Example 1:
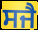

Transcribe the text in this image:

ਸਜੈ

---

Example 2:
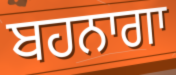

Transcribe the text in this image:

ਬਹਨਾਗਾ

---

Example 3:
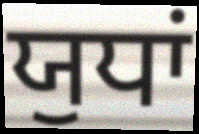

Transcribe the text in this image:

ਯੁਧਾਂ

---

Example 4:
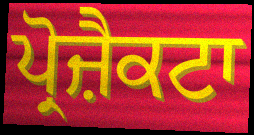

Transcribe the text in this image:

ਪ੍ਰੋਜ਼ੈਕਟਾ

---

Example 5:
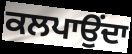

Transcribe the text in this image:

ਕਲਪਾਉਂਦਾ